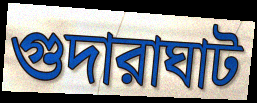
গুদারাঘাট